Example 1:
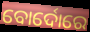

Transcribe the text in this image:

ବୋର୍ଦୋରେ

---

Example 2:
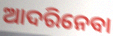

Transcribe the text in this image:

ଆଦରିନେବା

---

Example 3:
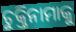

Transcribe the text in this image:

ଚୁକ୍ତିନାମାକୁ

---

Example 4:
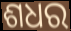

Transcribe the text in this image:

ଶଧର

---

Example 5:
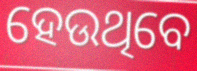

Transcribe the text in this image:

ହେଉଥିବେ